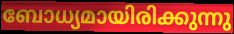
ബോധ്യമായിരിക്കുന്നു